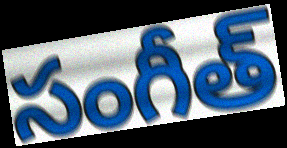
సంగీత్